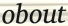
obout